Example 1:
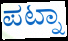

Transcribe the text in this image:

ಪಟ್ನಾ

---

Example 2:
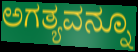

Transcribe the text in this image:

ಅಗತ್ಯವನ್ನೂ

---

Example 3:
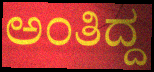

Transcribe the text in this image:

ಅಂತಿದ್ದ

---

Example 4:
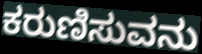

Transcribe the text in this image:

ಕರುಣಿಸುವನು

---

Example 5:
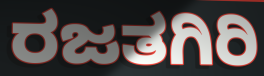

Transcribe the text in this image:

ರಜತಗಿರಿ